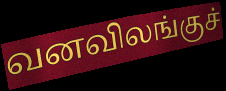
வனவிலங்குச்